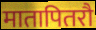
मातापितरौ